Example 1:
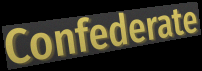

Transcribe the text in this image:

Confederate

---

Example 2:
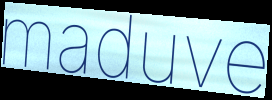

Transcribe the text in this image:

maduve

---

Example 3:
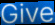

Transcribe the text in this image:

Give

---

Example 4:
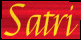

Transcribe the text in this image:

Satri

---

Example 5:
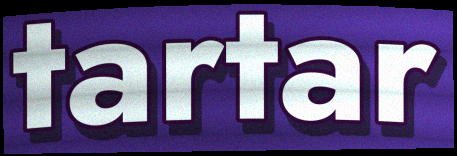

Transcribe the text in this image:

tartar